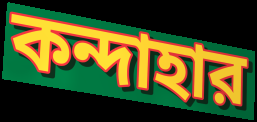
কন্দাহার